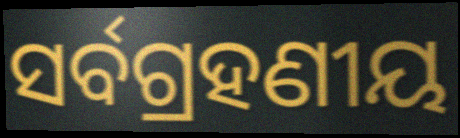
ସର୍ବଗ୍ରହଣୀୟ